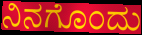
ನಿನಗೊಂದು